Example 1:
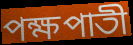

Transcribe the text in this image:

পক্ষপাতী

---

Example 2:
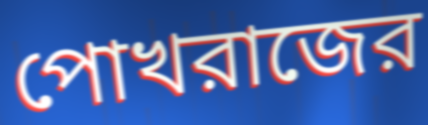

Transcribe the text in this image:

পোখরাজের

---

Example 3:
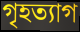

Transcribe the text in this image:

গৃহত্যাগ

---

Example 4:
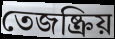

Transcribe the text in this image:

তেজষ্ক্রিয়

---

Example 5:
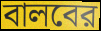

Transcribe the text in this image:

বালবের